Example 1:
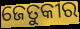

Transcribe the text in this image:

ଜେତୁକୀର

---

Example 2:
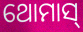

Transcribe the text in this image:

ଥୋମାସ୍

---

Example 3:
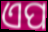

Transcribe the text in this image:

ଏପ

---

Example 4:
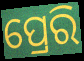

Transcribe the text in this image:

ପ୍ରେରି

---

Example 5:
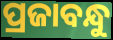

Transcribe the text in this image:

ପ୍ରଜାବନ୍ଧୁ